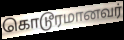
கொடூரமானவர்